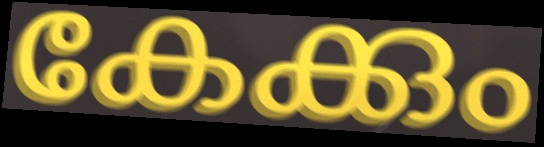
കേക്കും